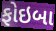
ફોઇબા